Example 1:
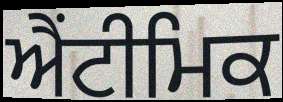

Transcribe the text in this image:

ਐਂਟੀਮਿਕ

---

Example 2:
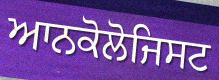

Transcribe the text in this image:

ਆਨਕੋਲੋਜਿਸਟ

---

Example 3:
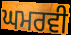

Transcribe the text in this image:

ਘਮਰਵੀ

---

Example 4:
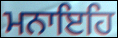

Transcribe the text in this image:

ਮਨਾਇਹਿ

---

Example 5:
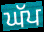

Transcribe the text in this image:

ਘੱਪ